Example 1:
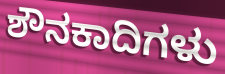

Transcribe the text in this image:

ಶೌನಕಾದಿಗಳು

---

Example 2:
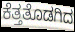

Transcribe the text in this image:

ಕೆತ್ತತೊಡಗಿದ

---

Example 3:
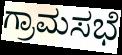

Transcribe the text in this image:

ಗ್ರಾಮಸಭೆ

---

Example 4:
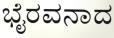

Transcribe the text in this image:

ಭೈರವನಾದ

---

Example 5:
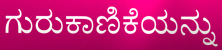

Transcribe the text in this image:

ಗುರುಕಾಣಿಕೆಯನ್ನು